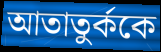
আতাতুর্ককে